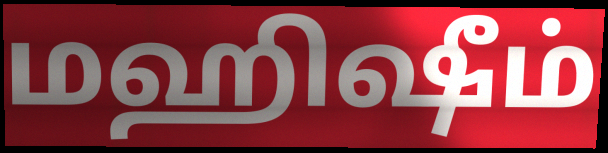
மஹிஷீம்